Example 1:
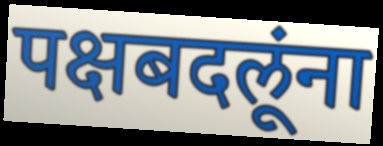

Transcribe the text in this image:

पक्षबदलूंना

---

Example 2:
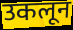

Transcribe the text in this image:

उकलून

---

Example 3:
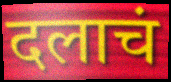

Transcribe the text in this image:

दलाचं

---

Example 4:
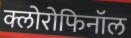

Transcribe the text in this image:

क्लोरोफिनॉल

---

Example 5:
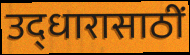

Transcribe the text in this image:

उद्धारासाठीं